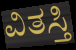
ವಿತಸ್ತಿ